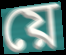
য়ে